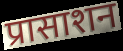
प्रासाशन